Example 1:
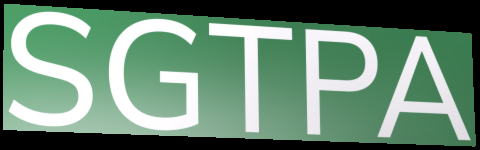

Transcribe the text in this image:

SGTPA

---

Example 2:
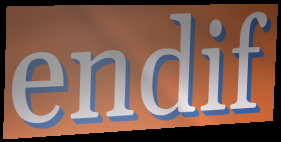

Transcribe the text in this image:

endif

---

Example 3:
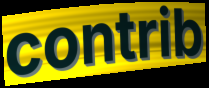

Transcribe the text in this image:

contrib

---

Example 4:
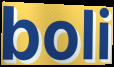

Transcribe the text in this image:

boli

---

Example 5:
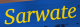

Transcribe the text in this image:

Sarwate